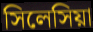
সিলেসিয়া